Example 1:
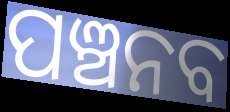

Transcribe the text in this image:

ପଞ୍ଚନବ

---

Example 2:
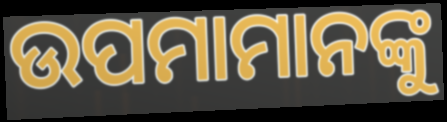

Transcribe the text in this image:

ଉପମାମାନଙ୍କୁ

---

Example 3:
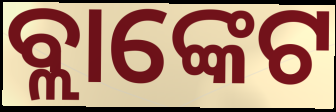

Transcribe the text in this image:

ବ୍ଲାଙ୍କେଟ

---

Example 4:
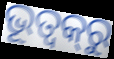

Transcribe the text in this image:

ଭୂତ୍ଵକ୍‌ରୁ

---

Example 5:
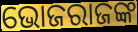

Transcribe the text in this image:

ଭୋଜରାଜଙ୍କ